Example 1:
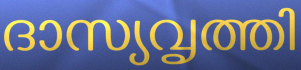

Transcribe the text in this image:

ദാസ്യവൃത്തി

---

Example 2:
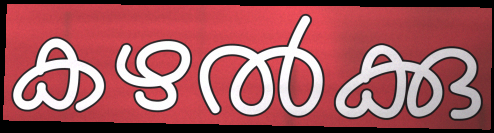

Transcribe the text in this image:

കഴൽക്കു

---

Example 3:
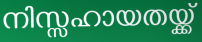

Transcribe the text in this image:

നിസ്സഹായതയ്ക്ക്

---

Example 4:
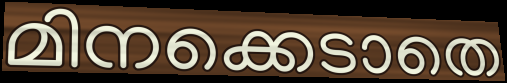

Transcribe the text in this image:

മിനക്കെടാതെ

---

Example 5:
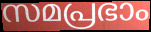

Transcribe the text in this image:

സമപ്രഭാം